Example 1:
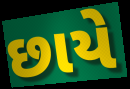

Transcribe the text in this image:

છાયે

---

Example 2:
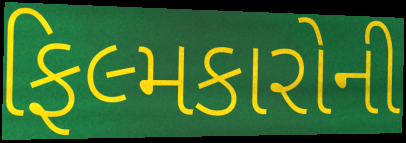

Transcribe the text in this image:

ફિલ્મકારોની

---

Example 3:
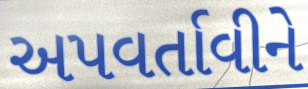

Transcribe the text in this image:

અપવર્તાવીને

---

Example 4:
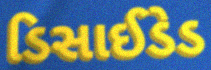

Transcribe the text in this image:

ડિસાઈડેડ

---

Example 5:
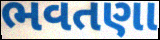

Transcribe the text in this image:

ભવતણા